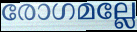
രോഗമല്ലേ